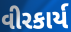
વીરકાર્ય